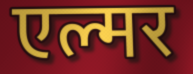
एल्मर